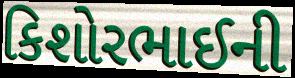
કિશોરભાઈની